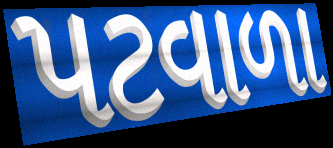
પટવાળા